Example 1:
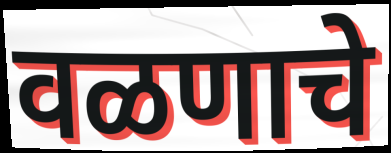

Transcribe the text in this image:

वळणाचे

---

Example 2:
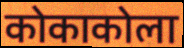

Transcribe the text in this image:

कोकाकोला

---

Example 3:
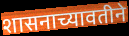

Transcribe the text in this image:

शासनाच्यावतीने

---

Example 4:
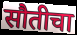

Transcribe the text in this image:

सौतीचा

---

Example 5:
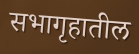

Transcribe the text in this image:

सभागृहातील